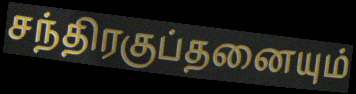
சந்திரகுப்தனையும்